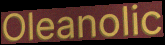
Oleanolic